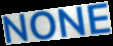
NONE